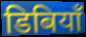
डिबियाँ